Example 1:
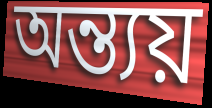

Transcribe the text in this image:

অন্ত্যয়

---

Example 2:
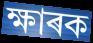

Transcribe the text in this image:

ক্ষাৰক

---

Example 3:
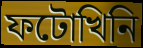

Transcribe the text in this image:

ফটোখিনি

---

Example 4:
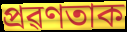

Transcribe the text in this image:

প্ৰৱণতাক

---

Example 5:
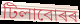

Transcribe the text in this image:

টিলাবোৰৰ